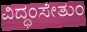
ವಿದ್ಧಂಸೇತುಂ